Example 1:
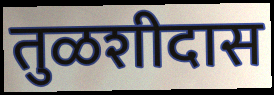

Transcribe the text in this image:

तुळशीदास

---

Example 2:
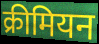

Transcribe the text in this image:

क्रीमियन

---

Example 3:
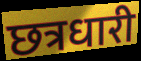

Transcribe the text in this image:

छत्रधारी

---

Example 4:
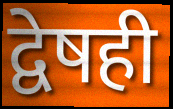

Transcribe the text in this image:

द्वेषही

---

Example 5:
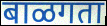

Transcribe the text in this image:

बाळगता